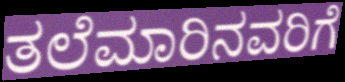
ತಲೆಮಾರಿನವರಿಗೆ